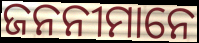
ଜନନୀମାନେ